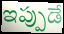
ఇప్పుడే